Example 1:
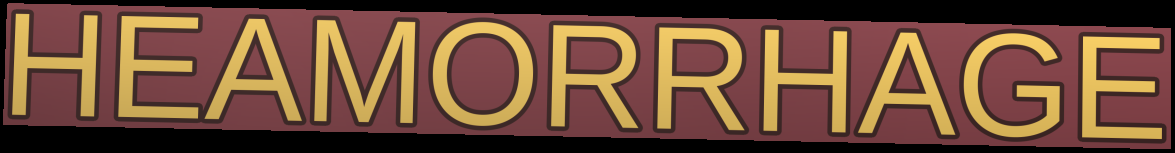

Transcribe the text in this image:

HEAMORRHAGE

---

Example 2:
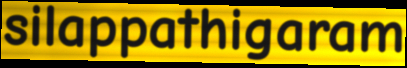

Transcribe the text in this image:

silappathigaram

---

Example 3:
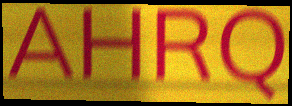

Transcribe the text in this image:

AHRQ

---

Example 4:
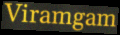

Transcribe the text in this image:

Viramgam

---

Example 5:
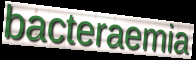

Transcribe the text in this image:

bacteraemia